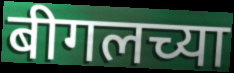
बीगलच्या